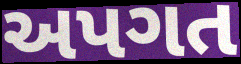
અપગત